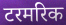
टरमरिक